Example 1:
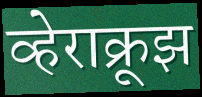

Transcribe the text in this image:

व्हेराक्रूझ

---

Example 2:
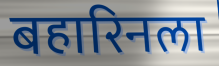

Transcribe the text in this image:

बहारिनला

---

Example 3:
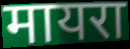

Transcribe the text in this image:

मायरा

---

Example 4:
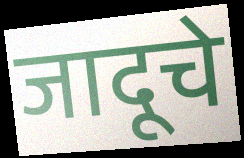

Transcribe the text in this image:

जादूचे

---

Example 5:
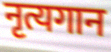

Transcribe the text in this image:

नृत्यगान